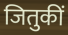
जितुकीं